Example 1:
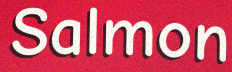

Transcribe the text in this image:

Salmon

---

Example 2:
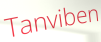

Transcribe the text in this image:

Tanviben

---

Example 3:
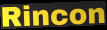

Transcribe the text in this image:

Rincon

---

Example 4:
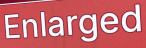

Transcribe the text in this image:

Enlarged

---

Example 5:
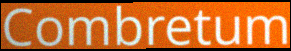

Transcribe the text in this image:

Combretum